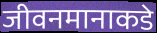
जीवनमानाकडे